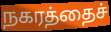
நகரத்தைச்